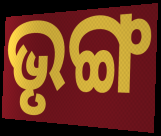
ଭୃଙ୍ଗ